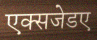
एक्सजेडए